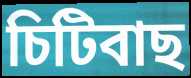
চিটিবাছ